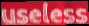
useless